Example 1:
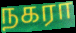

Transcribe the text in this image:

நகரா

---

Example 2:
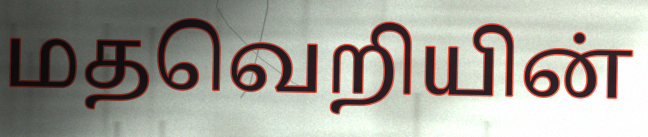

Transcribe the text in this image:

மதவெறியின்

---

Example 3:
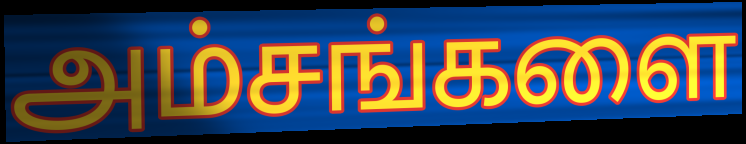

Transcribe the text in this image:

அம்சங்களை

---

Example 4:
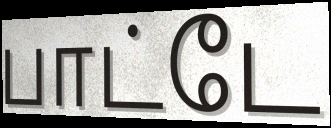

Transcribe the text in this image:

பாட்டே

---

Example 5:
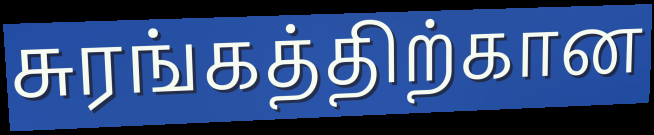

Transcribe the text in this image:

சுரங்கத்திற்கான